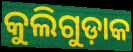
କୁଲିଗୁଡ଼ାକ